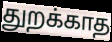
துறக்காத